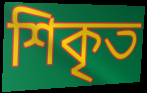
শিকৃত